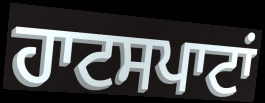
ਹਾਟਸਪਾਟਾਂ